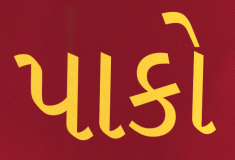
પાકો